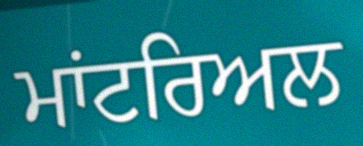
ਮਾਂਟਰਿਅਲ